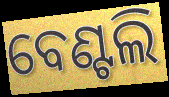
ବେଣ୍ଟଲି